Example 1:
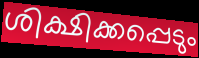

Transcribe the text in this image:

ശിക്ഷിക്കപ്പെടും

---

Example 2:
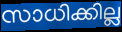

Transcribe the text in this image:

സാധിക്കില്ല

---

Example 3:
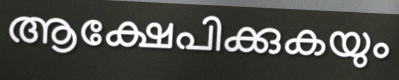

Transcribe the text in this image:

ആക്ഷേപിക്കുകയും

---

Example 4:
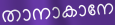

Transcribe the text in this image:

താനാകാനേ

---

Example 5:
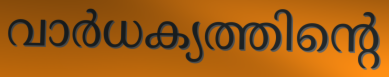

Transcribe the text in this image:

വാർധക്യത്തിന്റെ